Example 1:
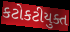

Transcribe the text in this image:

કટોકટીયુક્ત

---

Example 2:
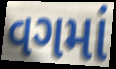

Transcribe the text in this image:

વગમાં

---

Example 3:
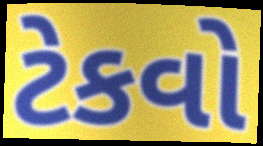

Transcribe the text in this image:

ટેકવો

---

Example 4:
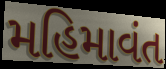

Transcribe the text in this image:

મહિમાવંત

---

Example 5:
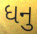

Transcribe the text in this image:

ધનુ